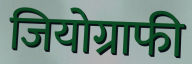
जियोग्राफी